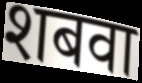
शबवा